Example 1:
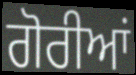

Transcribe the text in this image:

ਗੋਰੀਆਂ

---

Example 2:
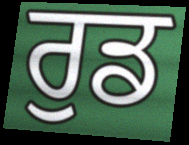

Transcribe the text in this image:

ਰੁਡ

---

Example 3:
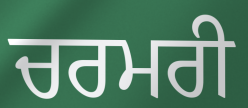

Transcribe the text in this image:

ਚਰਮਰੀ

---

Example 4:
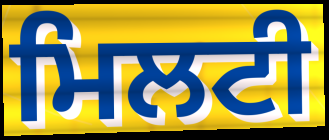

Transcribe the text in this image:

ਮਿਲਟੀ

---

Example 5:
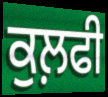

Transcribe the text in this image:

ਕੁਲ਼ਫੀ